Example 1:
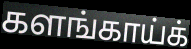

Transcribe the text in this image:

களங்காய்க்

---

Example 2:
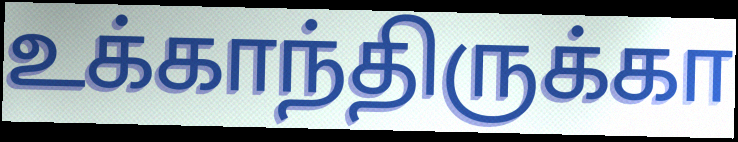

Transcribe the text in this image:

உக்காந்திருக்கா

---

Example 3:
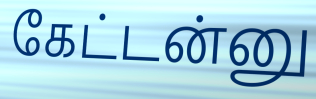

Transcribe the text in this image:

கேட்டன்னு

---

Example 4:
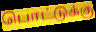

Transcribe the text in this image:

பொட்டுக்கு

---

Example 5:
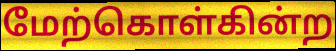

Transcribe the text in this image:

மேற்கொள்கின்ற